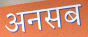
अनसब